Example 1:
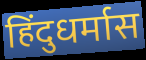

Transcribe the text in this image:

हिंदुधर्मास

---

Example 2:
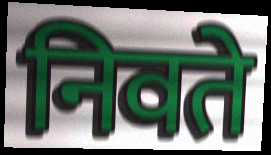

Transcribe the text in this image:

निवते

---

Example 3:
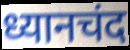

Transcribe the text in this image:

ध्यानचंद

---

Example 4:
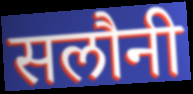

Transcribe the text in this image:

सलौनी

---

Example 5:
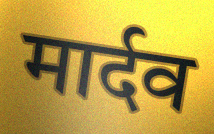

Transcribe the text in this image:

मार्दव